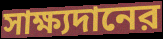
সাক্ষ্যদানের